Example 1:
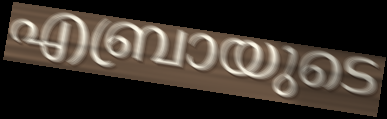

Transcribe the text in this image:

എബ്രായുടെ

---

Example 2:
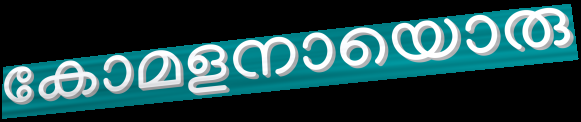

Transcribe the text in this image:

കോമളനായൊരു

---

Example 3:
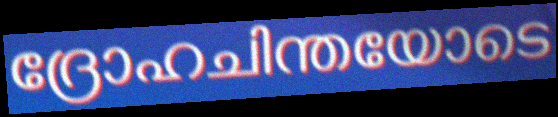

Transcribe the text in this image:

ദ്രോഹചിന്തയോടെ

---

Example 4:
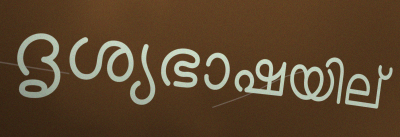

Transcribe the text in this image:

ദൃശ്യഭാഷയില്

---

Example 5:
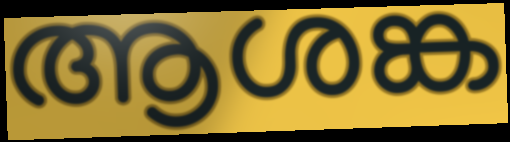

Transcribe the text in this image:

ആശങ്ക